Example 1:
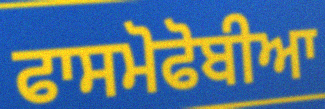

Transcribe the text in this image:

ਫਾਸਮੋਫੋਬੀਆ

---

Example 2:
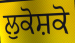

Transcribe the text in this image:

ਲੁਕੋਸ਼ਕੋ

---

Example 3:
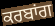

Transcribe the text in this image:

ਕਰਬਾਂਗ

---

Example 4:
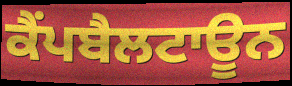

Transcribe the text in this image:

ਕੈਂਪਬੈਲਟਾਊਨ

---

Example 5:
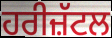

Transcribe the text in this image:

ਹਰੀਜ਼ੱਟਲ